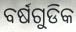
ବର୍ଷଗୁଡିକ